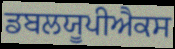
ਡਬਲਯੂਪੀਐਕਸ